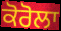
ਕੋਰੋਲਾ